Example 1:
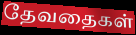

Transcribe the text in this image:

தேவதைகள்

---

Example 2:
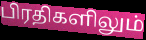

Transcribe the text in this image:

பிரதிகளிலும்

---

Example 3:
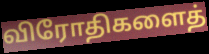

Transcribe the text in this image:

விரோதிகளைத்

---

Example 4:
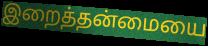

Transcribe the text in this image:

இறைத்தன்மையை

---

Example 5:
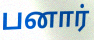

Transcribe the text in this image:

பனார்